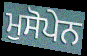
ਮੁਸੋਪੇਨ